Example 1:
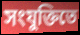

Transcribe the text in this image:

সংযুক্তিতে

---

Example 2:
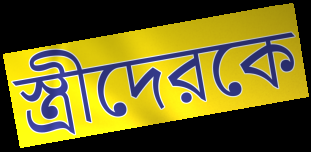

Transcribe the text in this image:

স্ত্রীদেরকে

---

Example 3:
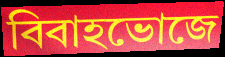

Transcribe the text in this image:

বিবাহভোজে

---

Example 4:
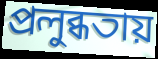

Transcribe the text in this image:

প্রলুব্ধতায়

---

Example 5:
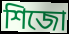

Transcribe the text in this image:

শিজো